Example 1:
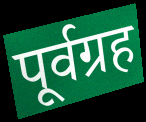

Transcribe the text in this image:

पूर्वग्रह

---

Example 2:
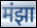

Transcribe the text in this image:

मंझा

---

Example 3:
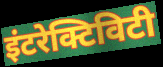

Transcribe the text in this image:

इंटरेक्टिविटी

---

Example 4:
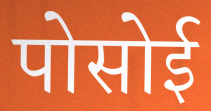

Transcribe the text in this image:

पोसोई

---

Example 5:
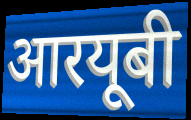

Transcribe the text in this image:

आरयूबी